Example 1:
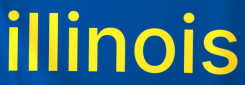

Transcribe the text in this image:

illinois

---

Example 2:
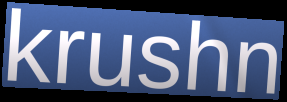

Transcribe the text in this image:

krushn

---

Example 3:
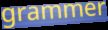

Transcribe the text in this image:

grammer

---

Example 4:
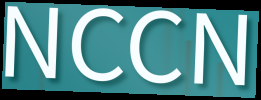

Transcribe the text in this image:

NCCN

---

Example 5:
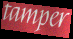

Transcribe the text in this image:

tamper